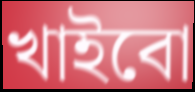
খাইবো